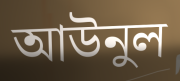
আউনুল